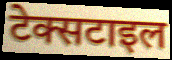
टेक्‍सटाइल